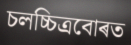
চলচ্চিত্ৰবোৰত